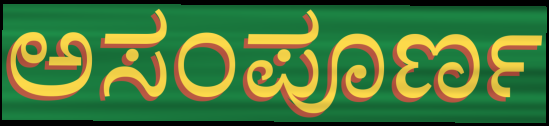
ಅಸಂಪೂರ್ಣ